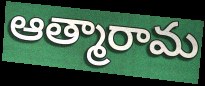
ఆత్మారామ